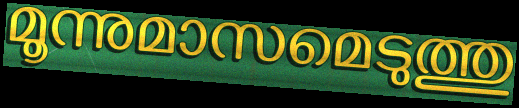
മൂന്നുമാസമെടുത്തു